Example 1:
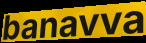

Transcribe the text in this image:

banavva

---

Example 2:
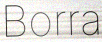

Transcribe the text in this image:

Borra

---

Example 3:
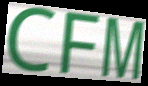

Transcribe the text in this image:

CFM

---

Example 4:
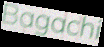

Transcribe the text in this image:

Bagachi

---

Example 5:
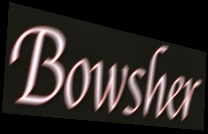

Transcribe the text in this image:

Bowsher